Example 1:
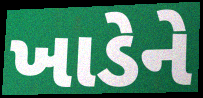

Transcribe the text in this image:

ખાડેને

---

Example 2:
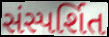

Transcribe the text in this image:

સંસ્પર્શિત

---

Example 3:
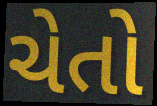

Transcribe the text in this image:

ચેતો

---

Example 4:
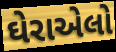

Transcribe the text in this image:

ઘેરાએલો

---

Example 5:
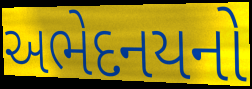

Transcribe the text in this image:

અભેદનયનો